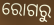
ରୋଗରୁ